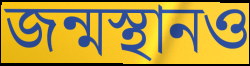
জন্মস্থানও